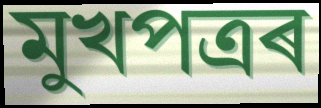
মুখপত্ৰৰ